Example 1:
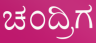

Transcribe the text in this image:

ಚಂದ್ರಿಗ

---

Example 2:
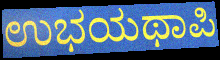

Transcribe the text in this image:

ಉಭಯಥಾಪಿ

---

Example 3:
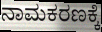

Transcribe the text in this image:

ನಾಮಕರಣಕ್ಕೆ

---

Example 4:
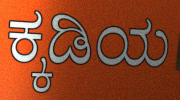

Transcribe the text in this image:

ಕ್ಕಡಿಯ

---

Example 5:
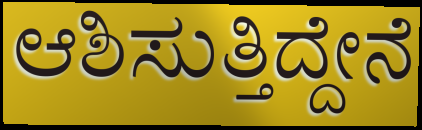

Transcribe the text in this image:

ಆಶಿಸುತ್ತಿದ್ದೇನೆ